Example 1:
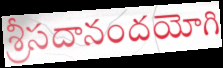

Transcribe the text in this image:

శ్రీసదానందయోగి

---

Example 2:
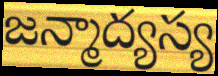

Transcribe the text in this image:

జన్మాద్యస్య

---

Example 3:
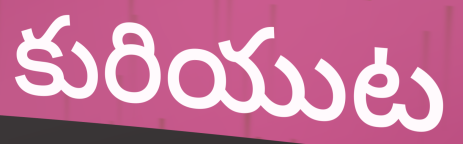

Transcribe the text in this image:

కురియుట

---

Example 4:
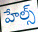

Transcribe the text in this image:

హేల్స్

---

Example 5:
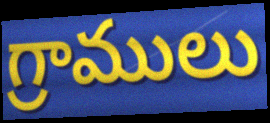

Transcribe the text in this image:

గ్రాములు